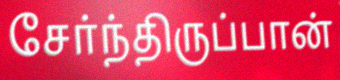
சேர்ந்திருப்பான்